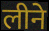
लीने